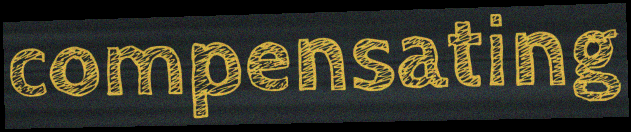
compensating